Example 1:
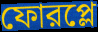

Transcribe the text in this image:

ফোরপ্লে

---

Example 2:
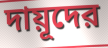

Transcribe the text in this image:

দায়ূদের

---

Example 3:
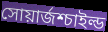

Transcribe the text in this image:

সোয়ার্জশ্চাইল্ড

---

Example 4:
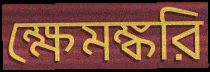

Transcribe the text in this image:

ক্ষেমঙ্করি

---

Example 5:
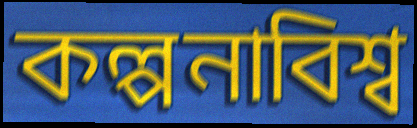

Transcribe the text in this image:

কল্পনাবিশ্ব